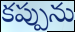
కప్పును